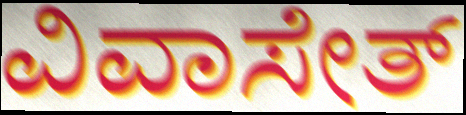
ವಿವಾಸೇತ್